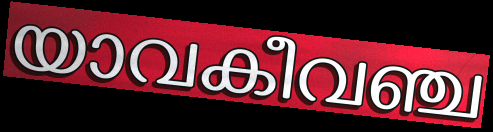
യാവകീവഞ്ച